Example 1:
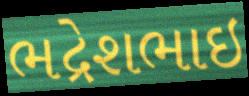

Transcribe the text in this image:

ભદ્રેશભાઇ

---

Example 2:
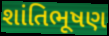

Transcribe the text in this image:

શાંતિભૂષણ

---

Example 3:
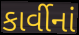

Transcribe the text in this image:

કાર્વીનાં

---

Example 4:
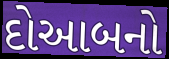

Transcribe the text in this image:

દોઆબનો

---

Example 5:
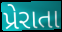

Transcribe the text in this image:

પ્રેરાતા